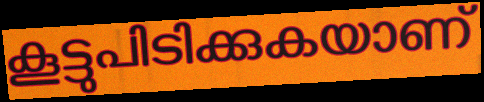
കൂട്ടുപിടിക്കുകയാണ്